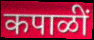
कपाळीं